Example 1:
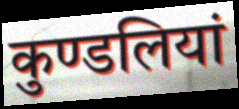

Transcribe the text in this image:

कुण्डलियां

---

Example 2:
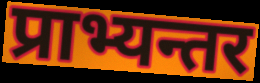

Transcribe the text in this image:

प्राभ्यन्तर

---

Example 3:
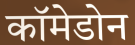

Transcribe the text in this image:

कॉमेडोन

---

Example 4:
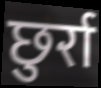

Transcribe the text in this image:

छुर्रा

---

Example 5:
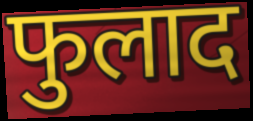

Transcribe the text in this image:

फुलाद